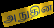
அநுதின